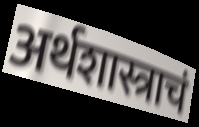
अर्थशास्त्राचं